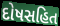
દોષસહિત